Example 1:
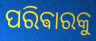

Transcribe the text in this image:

ପରିଵାରକୁ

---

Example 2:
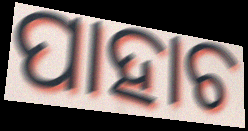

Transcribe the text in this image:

ପାହାଚ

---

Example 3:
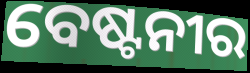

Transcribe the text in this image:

ବେଷ୍ଟନୀର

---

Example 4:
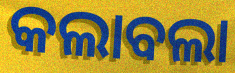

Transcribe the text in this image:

କଲାବଲା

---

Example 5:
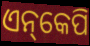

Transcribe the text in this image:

ଏନ୍‌କେପି